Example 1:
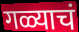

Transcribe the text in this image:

गळ्याचं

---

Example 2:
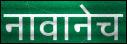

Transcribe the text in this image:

नावानेच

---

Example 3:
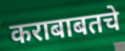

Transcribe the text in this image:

कराबाबतचे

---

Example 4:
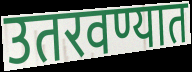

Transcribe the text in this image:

उतरवण्यात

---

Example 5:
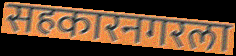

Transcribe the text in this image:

सहकारनगरला